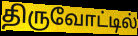
திருவோட்டில்